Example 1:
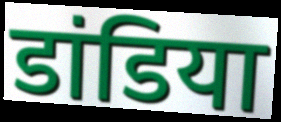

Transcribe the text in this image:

डांडिया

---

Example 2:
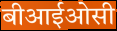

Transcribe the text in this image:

बीआईओसी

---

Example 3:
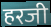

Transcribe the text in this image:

हरजी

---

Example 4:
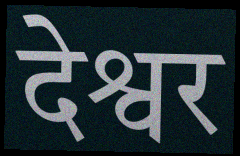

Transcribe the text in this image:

देश्वर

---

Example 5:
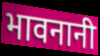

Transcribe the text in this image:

भावनानी